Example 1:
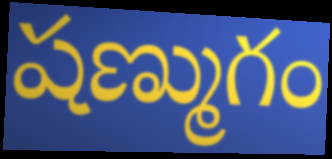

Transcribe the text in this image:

షణ్ముగం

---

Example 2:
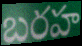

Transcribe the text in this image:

బరహ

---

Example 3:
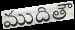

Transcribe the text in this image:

ముదితౌ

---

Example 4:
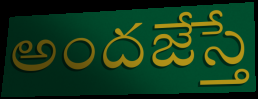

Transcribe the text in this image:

అందజేస్తే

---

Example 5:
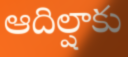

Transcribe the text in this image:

ఆదిల్షాకు